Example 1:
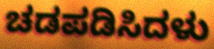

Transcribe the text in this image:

ಚಡಪಡಿಸಿದಳು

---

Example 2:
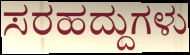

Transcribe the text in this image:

ಸರಹದ್ದುಗಳು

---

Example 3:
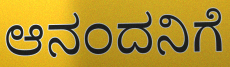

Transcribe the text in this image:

ಆನಂದನಿಗೆ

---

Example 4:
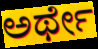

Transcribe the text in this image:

ಅರ್ಥೇ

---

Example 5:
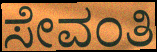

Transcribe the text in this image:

ಸೇವಂತಿ